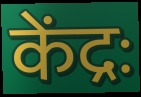
केंद्रः